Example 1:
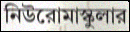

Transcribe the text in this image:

নিউরোমাস্কুলার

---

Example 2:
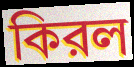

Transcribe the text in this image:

কিরল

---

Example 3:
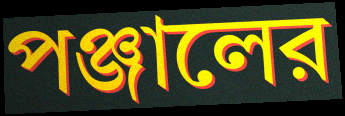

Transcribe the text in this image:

পঞ্জালের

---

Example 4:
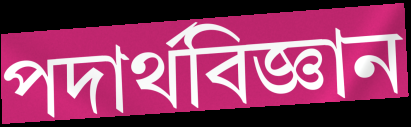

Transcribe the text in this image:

পদার্থবিজ্ঞান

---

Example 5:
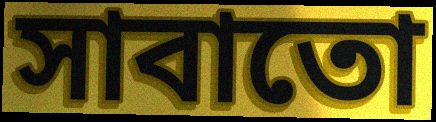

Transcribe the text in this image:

সাবাতো